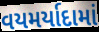
વયમર્યાદામાં